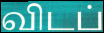
விடப்